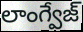
లాంగ్వేజ్